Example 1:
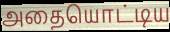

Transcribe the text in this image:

அதையொட்டிய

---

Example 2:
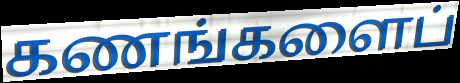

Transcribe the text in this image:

கணங்களைப்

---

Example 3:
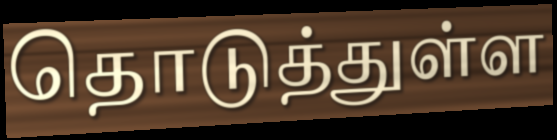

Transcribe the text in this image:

தொடுத்துள்ள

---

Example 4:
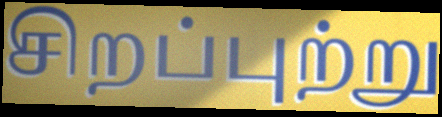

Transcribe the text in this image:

சிறப்புற்று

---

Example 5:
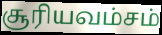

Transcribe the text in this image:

சூரியவம்சம்